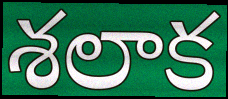
శలాక